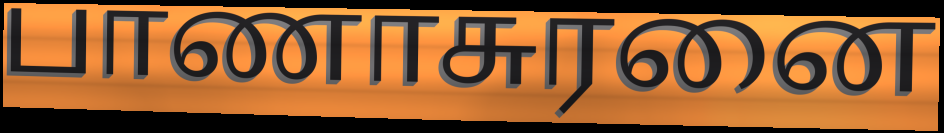
பாணாசுரனை